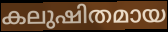
കലുഷിതമായ